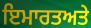
ਇਮਾਰਤਅਤੇ